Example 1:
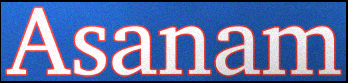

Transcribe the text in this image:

Asanam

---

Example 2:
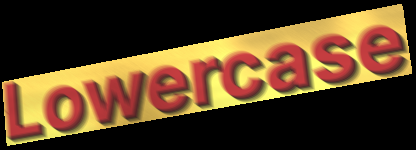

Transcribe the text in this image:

Lowercase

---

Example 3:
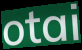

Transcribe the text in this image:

otai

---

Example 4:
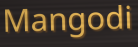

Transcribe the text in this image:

Mangodi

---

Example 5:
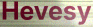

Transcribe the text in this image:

Hevesy